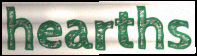
hearths